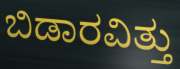
ಬಿಡಾರವಿತ್ತು